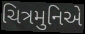
ચિત્રમુનિએ